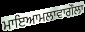
ਮਾਇਆਮਲਾਵਾਗੌਲਾ